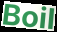
Boil